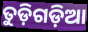
ତୁଡ଼ିଗଡ଼ିଆ